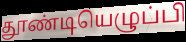
தூண்டியெழுப்பி